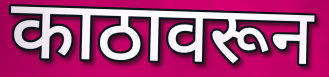
काठावरून